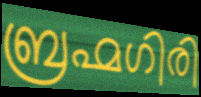
ബ്രഹ്മഗിരി